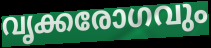
വൃക്കരോഗവും